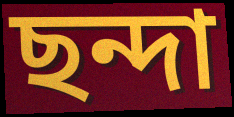
ছন্দা